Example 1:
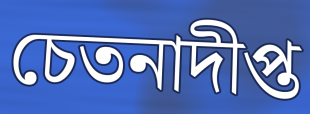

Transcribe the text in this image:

চেতনাদীপ্ত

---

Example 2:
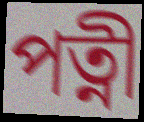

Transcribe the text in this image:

পত্নী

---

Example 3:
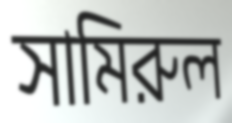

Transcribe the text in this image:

সামিরুল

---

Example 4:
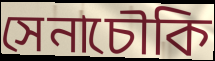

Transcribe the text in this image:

সেনাচৌকি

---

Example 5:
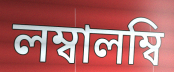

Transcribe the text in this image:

লম্বালম্বি